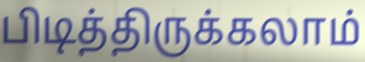
பிடித்திருக்கலாம்